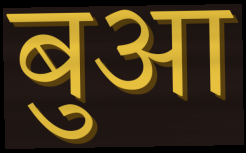
बुआ